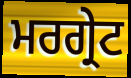
ਮਰਗ੍ਰੇਟ